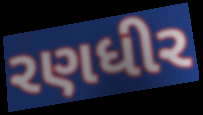
રણધીર